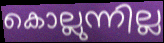
കൊല്ലുന്നില്ല